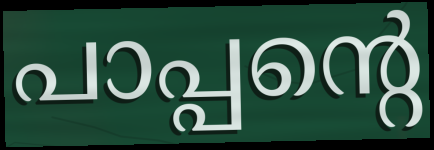
പാപ്പന്റെ